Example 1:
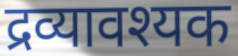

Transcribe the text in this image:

द्रव्यावश्यक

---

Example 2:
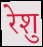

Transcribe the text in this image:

रेशु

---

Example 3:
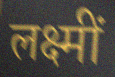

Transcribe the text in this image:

लक्ष्मीं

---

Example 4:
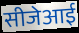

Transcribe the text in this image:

सीजेआई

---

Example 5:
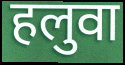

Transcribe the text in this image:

हलुवा